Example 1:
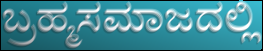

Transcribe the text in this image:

ಬ್ರಹ್ಮಸಮಾಜದಲ್ಲಿ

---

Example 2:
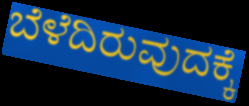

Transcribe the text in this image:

ಬೆಳೆದಿರುವುದಕ್ಕೆ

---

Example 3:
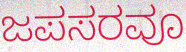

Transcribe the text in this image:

ಜಪಸರವೂ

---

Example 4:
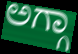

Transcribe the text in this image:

ಅಗ್ಗಾ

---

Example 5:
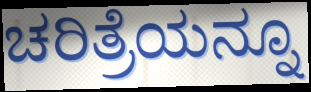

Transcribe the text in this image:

ಚರಿತ್ರೆಯನ್ನೂ